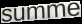
summe